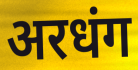
अरधंग